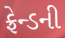
ફ્રેન્ડની